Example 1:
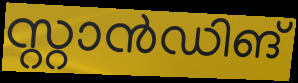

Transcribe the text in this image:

സ്റ്റാൻഡിങ്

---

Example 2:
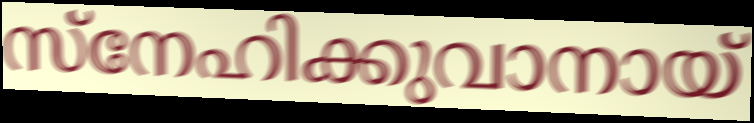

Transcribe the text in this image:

സ്നേഹിക്കുവാനായ്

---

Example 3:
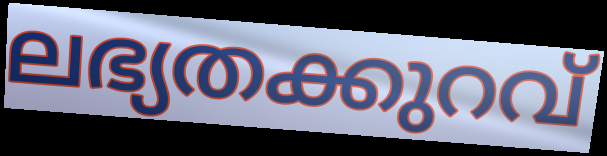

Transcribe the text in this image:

ലഭ്യതക്കുറവ്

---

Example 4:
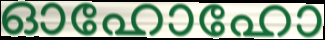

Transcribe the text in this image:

ഓഹോഹോ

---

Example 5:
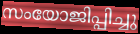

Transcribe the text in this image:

സംയോജിപ്പിച്ചു